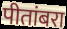
पीतांबरा